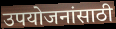
उपयोजनांसाठी